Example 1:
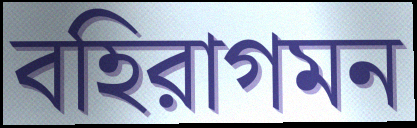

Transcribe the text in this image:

বহিরাগমন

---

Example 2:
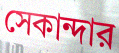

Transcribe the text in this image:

সেকান্দার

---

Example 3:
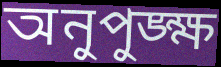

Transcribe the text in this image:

অনুপুঙ্ক্ষ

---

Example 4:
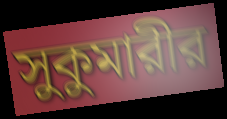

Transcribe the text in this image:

সুকুমারীর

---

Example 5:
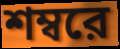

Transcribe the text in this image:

শম্বরে